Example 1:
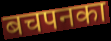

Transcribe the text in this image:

बचपनका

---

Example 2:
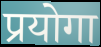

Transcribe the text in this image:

प्रयोगा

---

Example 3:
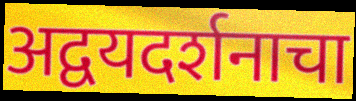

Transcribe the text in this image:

अद्वयदर्शनाचा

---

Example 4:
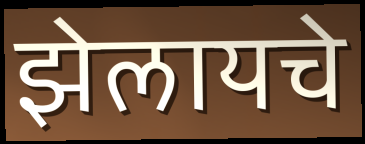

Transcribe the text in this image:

झेलायचे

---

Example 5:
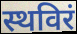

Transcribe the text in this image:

स्थविरं